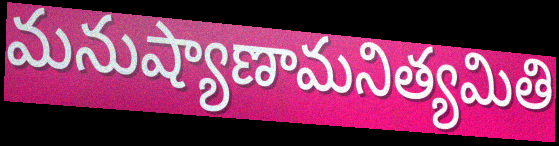
మనుష్యాణామనిత్యమితి